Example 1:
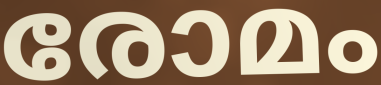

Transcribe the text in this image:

രോമം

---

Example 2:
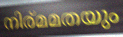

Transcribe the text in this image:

നിര്മമതയും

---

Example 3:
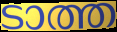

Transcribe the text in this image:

ടാത്ത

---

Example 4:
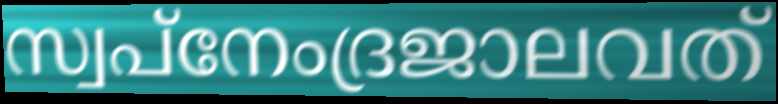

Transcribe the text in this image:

സ്വപ്നേംദ്രജാലവത്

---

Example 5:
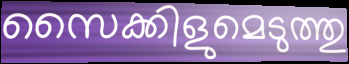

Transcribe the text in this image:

സൈക്കിളുമെടുത്തു